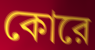
কোরে